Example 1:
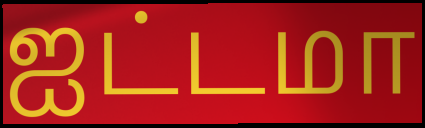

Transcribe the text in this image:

ஐட்டமா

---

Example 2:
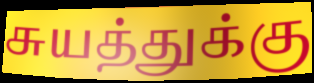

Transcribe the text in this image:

சுயத்துக்கு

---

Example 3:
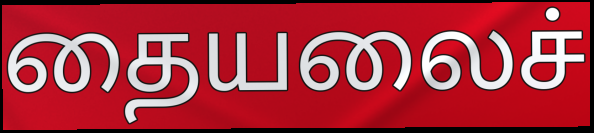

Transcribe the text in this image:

தையலைச்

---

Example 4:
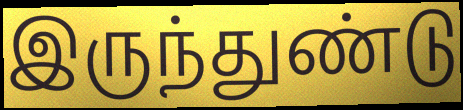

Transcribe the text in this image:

இருந்துண்டு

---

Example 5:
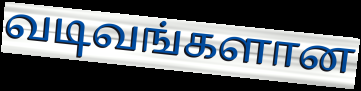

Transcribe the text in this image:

வடிவங்களான